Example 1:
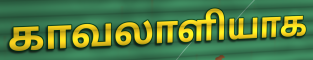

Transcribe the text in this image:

காவலாளியாக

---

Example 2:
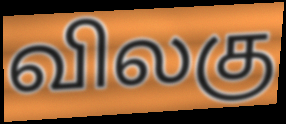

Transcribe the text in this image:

விலகு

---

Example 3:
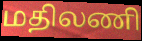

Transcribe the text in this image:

மதிலணி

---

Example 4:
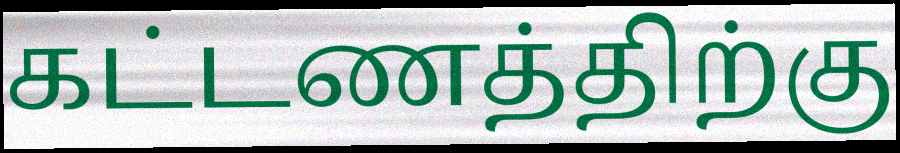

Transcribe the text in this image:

கட்டணத்திற்கு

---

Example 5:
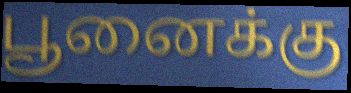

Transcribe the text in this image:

பூனைக்கு